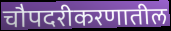
चौपदरीकरणातील